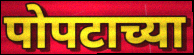
पोपटाच्या